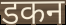
डकन